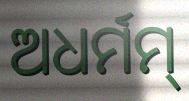
ଅଧର୍ମମ୍